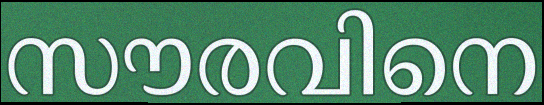
സൗരവിനെ